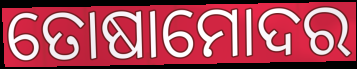
ତୋଷାମୋଦର